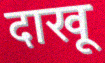
दाखू